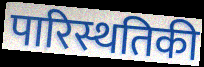
पारिस्थतिकी